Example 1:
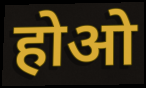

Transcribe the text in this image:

होओ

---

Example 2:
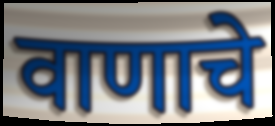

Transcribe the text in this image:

वाणाचे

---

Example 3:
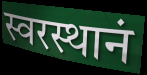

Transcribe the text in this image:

स्वरस्थानं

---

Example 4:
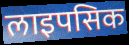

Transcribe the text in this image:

लाइपसिक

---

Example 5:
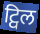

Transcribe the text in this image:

ट्विल